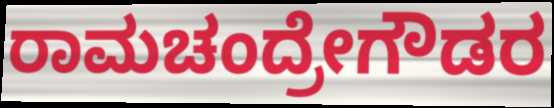
ರಾಮಚಂದ್ರೇಗೌಡರ